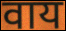
वाय